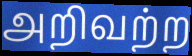
அறிவற்ற